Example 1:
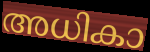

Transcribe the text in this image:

അധികാ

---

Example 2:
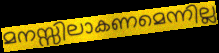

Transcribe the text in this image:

മനസ്സിലാകണമെന്നില്ല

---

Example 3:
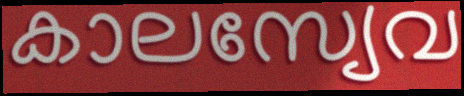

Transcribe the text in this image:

കാലസ്യേവ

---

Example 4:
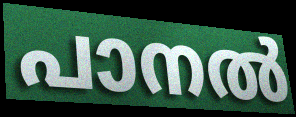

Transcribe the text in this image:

പാനൽ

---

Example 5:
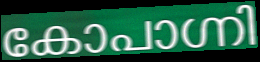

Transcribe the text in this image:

കോപാഗ്നി